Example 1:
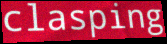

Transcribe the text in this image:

clasping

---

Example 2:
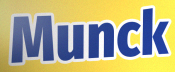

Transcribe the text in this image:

Munck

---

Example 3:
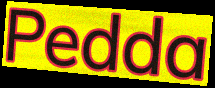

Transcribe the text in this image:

Pedda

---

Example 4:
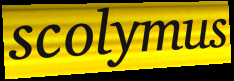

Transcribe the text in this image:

scolymus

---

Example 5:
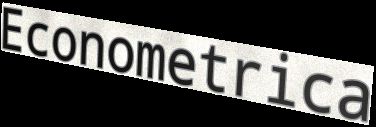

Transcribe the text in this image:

Econometrica